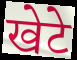
खेटे